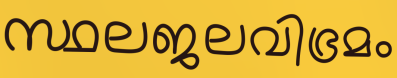
സ്ഥലജലവിഭ്രമം